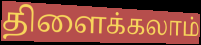
திளைக்கலாம்